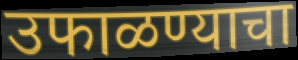
उफाळण्याचा